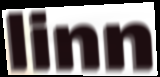
linn